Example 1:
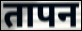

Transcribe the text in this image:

तापन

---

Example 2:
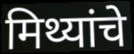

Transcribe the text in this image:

मिथ्यांचे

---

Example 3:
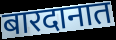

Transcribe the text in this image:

बारदानात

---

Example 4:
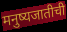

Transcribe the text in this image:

मनुष्यजातीची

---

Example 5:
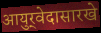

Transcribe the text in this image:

आयुर्वेदासारखे